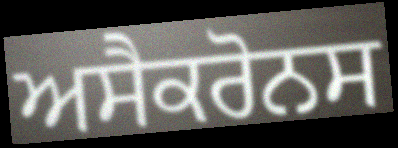
ਅਸੈਕਰੋਨਸ